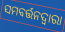
ସମବର୍ତ୍ତନଦ୍ୱାରା